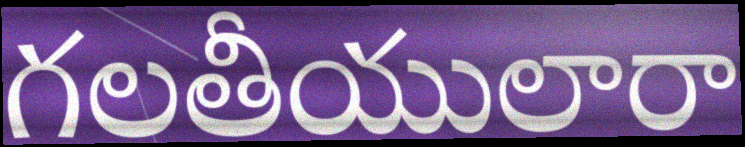
గలతీయులారా